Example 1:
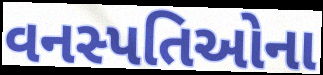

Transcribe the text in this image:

વનસ્પતિઓના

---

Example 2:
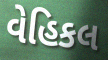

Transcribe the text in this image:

વેહિકલ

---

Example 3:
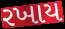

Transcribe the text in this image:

રખાય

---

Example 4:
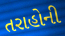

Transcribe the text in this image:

તરાહોની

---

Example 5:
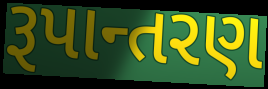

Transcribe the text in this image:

રૂપાન્તરણ